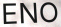
ENO